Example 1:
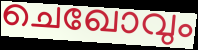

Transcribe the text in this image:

ചെഖോവും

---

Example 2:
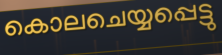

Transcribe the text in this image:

കൊലചെയ്യപ്പെട്ടു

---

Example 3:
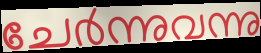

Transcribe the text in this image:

ചേർന്നുവന്നു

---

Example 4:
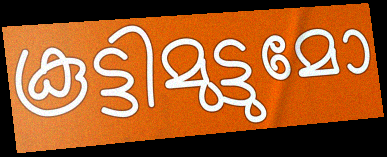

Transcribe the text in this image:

കൂട്ടിമുട്ടുമോ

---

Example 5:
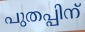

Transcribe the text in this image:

പുതപ്പിന്